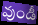
వుండీ